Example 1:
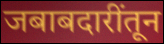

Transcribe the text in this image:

जबाबदारींतून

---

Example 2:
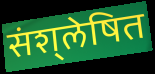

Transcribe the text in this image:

संश्लेषित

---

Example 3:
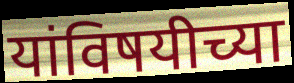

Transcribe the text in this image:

यांविषयीच्या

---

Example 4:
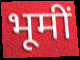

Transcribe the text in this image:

भूमीं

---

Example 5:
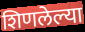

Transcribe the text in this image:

शिणलेल्या